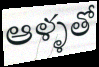
ఆళ్ళతో